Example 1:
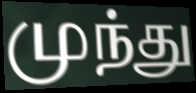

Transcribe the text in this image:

முந்து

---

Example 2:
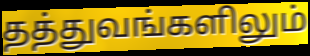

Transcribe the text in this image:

தத்துவங்களிலும்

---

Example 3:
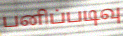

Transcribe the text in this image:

பனிப்படிவு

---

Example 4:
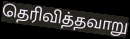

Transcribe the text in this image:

தெரிவித்தவாறு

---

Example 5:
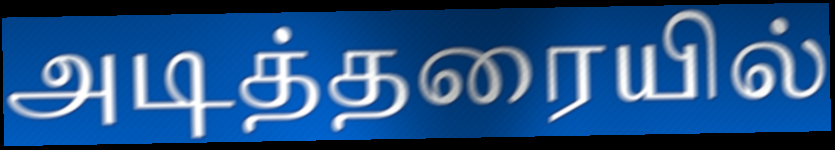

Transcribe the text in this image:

அடித்தரையில்